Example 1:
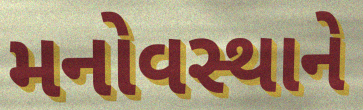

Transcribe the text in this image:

મનોવસ્થાને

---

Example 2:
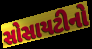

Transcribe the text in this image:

સોસાયટીનો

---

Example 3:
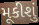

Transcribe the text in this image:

મૂકીશું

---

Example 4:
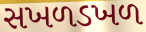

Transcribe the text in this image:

સખળડખળ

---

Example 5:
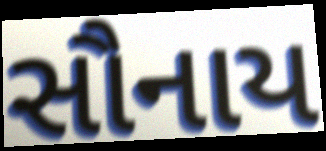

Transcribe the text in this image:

સૌનાય